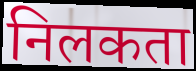
निलकता